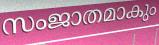
സംജാതമാകും